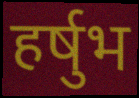
हर्षुभ